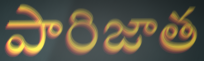
పారిజాత